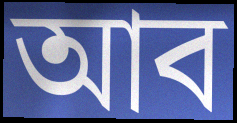
আব